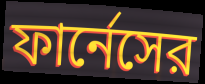
ফার্নেসের